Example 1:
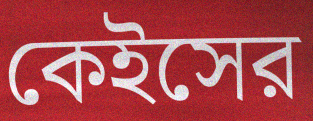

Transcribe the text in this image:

কেইসের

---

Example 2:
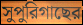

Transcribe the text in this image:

সুপুরিগাছের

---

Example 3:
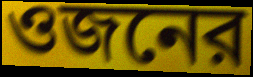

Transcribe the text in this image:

ওজনের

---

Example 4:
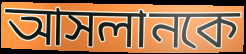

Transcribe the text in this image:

আসলানকে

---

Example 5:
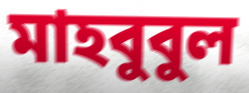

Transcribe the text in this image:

মাহবুবুল